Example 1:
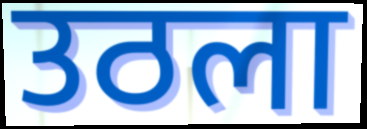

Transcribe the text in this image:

उठला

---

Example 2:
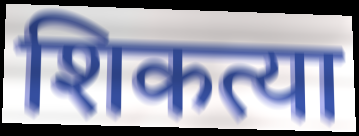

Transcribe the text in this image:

शिकत्या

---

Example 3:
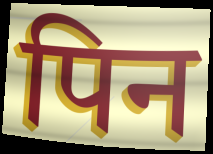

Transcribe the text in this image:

पिन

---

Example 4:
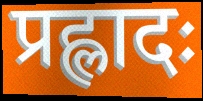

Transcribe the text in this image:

प्रह्लादः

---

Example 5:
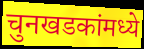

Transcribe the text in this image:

चुनखडकांमध्ये